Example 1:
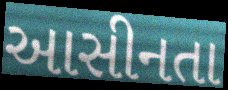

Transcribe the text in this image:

આસીનતા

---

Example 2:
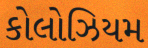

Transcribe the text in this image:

કોલોઝિયમ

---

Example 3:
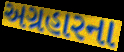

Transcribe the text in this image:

અગ્રહારના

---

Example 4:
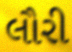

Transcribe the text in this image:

લૌરી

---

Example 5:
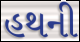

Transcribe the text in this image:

હથની